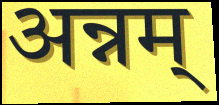
अन्नम्